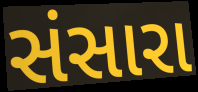
સંસારા